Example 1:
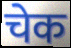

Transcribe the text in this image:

चेक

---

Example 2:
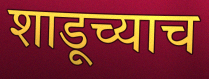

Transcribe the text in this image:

शाडूच्याच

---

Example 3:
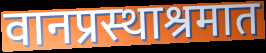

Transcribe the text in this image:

वानप्रस्थाश्रमात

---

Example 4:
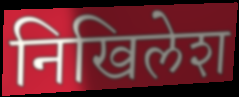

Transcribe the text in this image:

निखिलेश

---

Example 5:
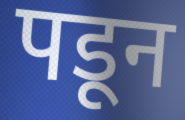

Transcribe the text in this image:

पडून